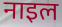
नाइल